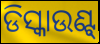
ଡିସ୍କାଉଣ୍ଟ୍